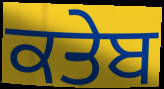
ਕਤੇਬ